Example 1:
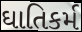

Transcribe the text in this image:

ઘાતિકર્મ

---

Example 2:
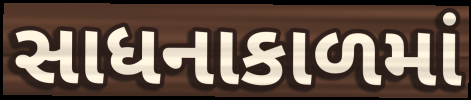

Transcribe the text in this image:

સાધનાકાળમાં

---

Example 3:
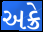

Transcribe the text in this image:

અક્રે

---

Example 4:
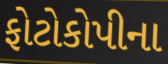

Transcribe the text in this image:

ફોટોકોપીના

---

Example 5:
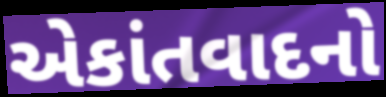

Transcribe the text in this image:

એકાંતવાદનો